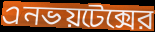
এনভয়টেক্সের